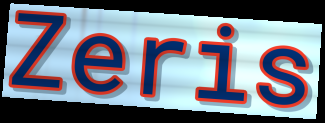
Zeris